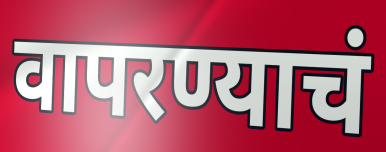
वापरण्याचं